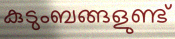
കുടുംബങ്ങളുണ്ട്